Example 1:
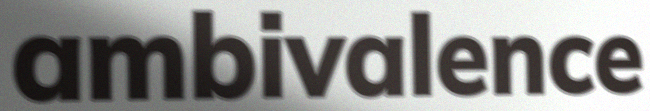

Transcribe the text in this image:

ambivalence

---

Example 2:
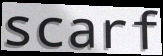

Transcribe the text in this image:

scarf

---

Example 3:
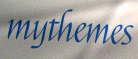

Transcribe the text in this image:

mythemes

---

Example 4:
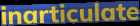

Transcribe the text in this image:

inarticulate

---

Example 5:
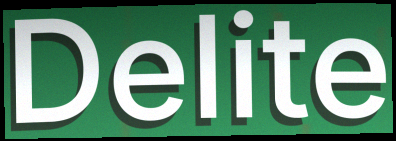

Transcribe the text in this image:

Delite